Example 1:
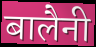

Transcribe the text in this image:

बालैनी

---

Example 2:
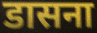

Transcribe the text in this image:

डासना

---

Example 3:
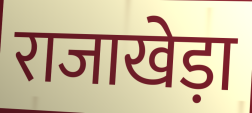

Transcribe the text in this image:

राजाखेड़ा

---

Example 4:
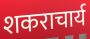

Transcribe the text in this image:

शकराचार्य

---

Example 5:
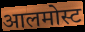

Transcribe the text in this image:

आलमोस्ट